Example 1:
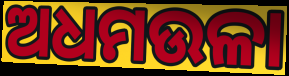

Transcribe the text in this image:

ଅଧମଉଳା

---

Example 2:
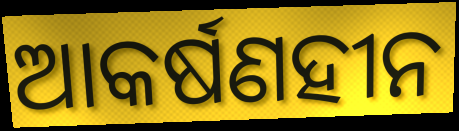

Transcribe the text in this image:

ଆକର୍ଷଣହୀନ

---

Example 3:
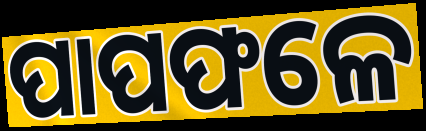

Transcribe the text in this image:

ପାପଫଳେ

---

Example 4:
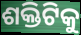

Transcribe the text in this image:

ଶକ୍ତିଟିକୁ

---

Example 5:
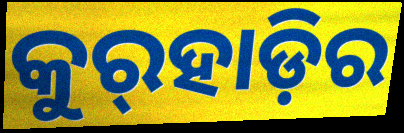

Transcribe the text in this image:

କୁର୍‍ହାଡ଼ିର